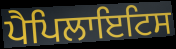
ਪੈਪਿਲਾਇਟਿਸ